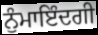
ਨੁੰਮਾਇੰਦਗੀ